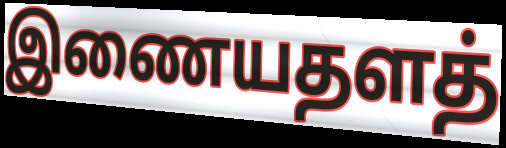
இணையதளத்